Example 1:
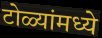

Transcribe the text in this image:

टोळ्यांमध्ये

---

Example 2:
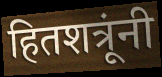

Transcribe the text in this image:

हितशत्रूंनी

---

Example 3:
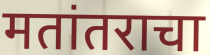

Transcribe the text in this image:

मतांतराचा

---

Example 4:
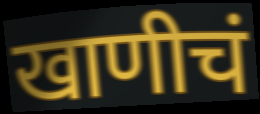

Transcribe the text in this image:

खाणीचं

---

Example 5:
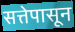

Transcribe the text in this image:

सत्तेपासून